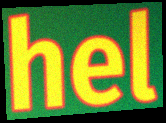
hel